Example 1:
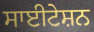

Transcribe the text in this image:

ਸਾਈਟੇਸ਼ਨ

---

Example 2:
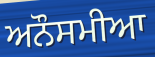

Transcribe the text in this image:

ਅਨੌਸਮੀਆ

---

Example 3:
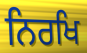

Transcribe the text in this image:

ਨਿਰਖਿ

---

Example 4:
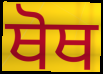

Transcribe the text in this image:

ਥੋਥ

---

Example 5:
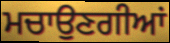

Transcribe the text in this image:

ਮਚਾਉਣਗੀਆਂ